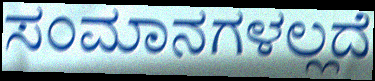
ಸಂಮಾನಗಳಲ್ಲದೆ